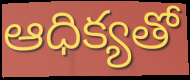
ఆధిక్యతో